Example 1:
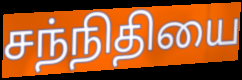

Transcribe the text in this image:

சந்நிதியை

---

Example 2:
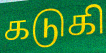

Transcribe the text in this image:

கடுகி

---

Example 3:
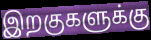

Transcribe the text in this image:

இறகுகளுக்கு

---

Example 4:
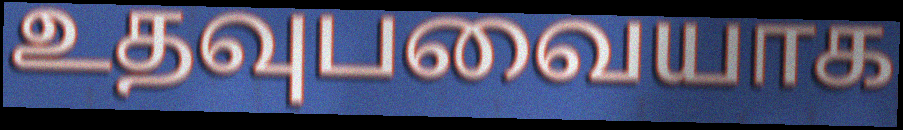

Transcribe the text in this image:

உதவுபவையாக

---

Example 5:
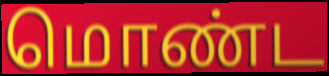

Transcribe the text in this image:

மொண்ட